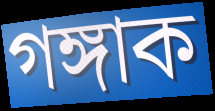
গঙ্গাক